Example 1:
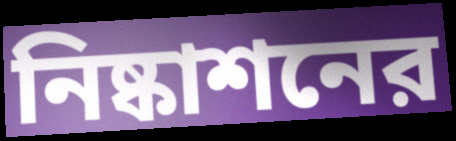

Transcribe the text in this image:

নিষ্কাশনের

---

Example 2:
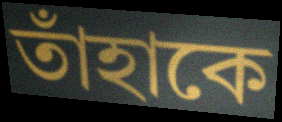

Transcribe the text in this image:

তাঁহাকে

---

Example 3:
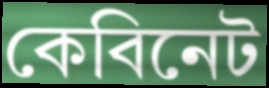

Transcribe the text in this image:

কেবিনেট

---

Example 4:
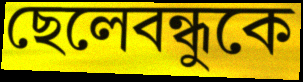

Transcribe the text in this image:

ছেলেবন্ধুকে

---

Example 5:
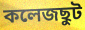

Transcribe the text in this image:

কলেজছুট